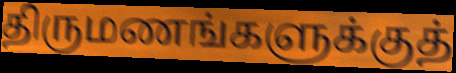
திருமணங்களுக்குத்